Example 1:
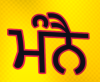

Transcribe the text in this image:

ਮੰਨੈ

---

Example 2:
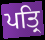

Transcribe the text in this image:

ਪਤ੍ਰਿ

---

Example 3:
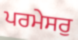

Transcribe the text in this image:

ਪਰਮੇਸਰੁ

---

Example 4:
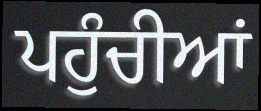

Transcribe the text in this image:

ਪਹੁੰਚੀਆਂ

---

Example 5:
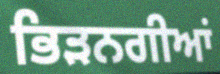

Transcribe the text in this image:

ਭਿੜਨਗੀਆਂ